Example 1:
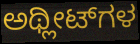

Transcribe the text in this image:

ಅಥ್ಲೀಟ್‌ಗಳ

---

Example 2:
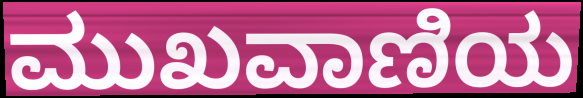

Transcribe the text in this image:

ಮುಖವಾಣಿಯ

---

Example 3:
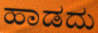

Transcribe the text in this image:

ಹಾಡದು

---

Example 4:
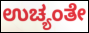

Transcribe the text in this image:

ಉಚ್ಯಂತೇ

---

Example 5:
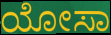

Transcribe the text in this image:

ಯೋಸಾ